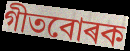
গীতবোৰক